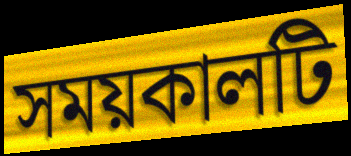
সময়কালটি